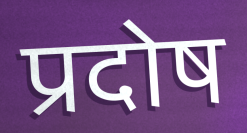
प्रदोष